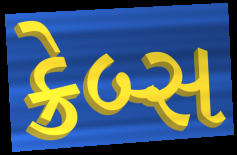
ક્રેબ્સ